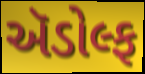
ઍડોલ્ફ